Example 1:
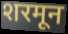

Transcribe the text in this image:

शरमून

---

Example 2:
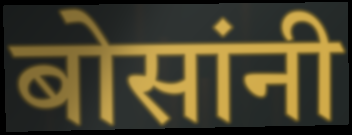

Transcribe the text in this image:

बोसांनी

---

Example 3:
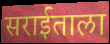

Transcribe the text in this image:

सराईताला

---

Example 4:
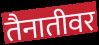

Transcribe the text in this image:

तैनातीवर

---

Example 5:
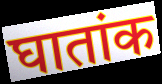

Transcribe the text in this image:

घातांक